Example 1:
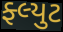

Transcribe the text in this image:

ફ્લ્યુટ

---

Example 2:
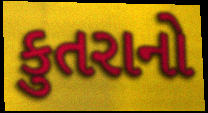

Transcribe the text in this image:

કુતરાનો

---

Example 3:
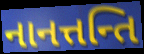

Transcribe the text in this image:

નાનત્તન્તિ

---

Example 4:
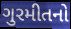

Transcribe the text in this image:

ગુરમીતનો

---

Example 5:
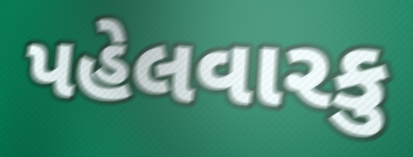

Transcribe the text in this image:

પહેલવારકુ